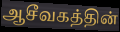
ஆசீவகத்தின்